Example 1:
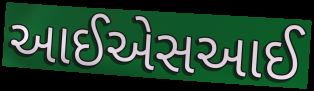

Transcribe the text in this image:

આઈએસઆઈ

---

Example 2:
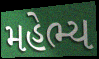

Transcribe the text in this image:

મહેભ્ય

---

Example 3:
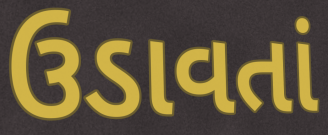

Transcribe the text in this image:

ઉડાવતાં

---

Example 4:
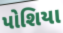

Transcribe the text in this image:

પોશિયા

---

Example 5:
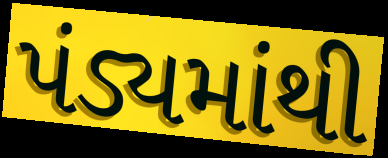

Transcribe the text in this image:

પંડ્યમાંથી